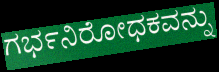
ಗರ್ಭನಿರೋಧಕವನ್ನು